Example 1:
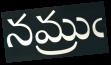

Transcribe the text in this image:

నమ్రుఁ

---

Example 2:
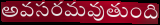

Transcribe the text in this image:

అవసరమవుతుంది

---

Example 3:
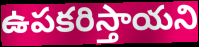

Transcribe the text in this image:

ఉపకరిస్తాయని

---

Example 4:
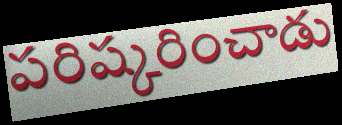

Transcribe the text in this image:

పరిష్కరించాడు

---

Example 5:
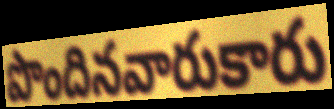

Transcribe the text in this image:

పొందినవారుకారు